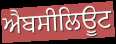
ਐਬਸੀਲਿਊਟ